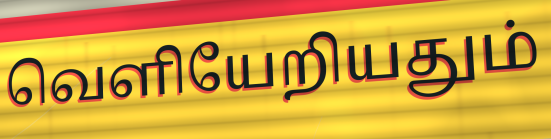
வெளியேறியதும்